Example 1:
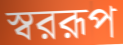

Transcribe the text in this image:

স্বররূপ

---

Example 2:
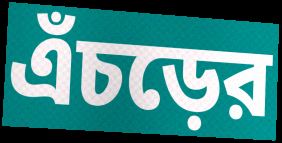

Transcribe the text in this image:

এঁচড়ের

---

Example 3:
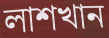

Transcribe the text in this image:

লাশখান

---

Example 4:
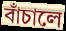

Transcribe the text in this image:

বাঁচালে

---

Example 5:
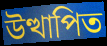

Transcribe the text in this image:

উত্থাপিত